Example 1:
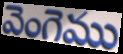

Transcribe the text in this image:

వెంగెము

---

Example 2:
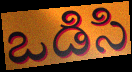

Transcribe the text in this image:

ఒడిసి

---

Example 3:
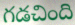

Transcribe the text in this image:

గడచింది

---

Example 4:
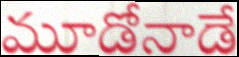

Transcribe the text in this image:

మూడోనాడే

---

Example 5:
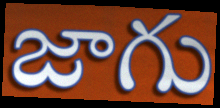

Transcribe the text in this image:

జాగు